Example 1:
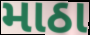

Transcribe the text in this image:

માઠા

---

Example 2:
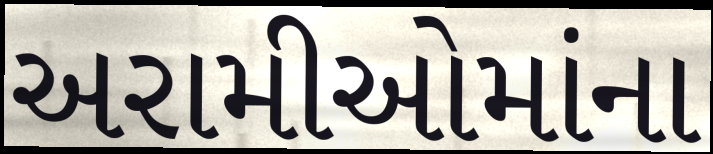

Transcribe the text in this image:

અરામીઓમાંના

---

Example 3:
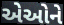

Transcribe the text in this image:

એઓને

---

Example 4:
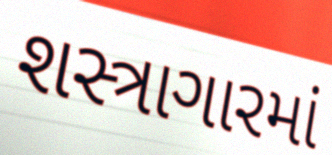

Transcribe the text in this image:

શસ્ત્રાગારમાં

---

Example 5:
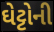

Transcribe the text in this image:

ઘેટ્ટોની